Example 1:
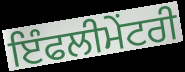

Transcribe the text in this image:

ਇੰਫਲੀਮੇਂਟਰੀ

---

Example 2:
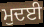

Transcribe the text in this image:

ਮੁਦਈ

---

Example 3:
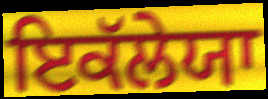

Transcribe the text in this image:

ਇਕੱਲੇਯਾ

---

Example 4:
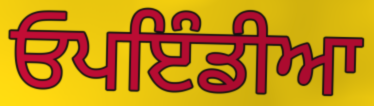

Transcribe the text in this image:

ਓਪਇੰਡੀਆ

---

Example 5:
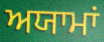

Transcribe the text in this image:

ਅਯਾਮਾਂ